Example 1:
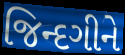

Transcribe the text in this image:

જિન્દગીને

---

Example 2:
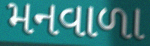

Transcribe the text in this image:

મનવાળા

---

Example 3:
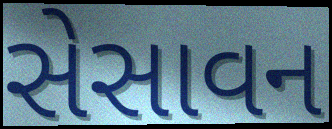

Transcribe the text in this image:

સેસાવન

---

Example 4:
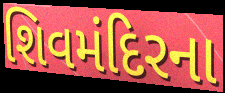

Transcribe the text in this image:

શિવમંદિરના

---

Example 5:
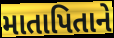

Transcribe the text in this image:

માતાપિતાને